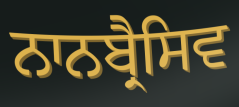
ਨਾਨਬ੍ਰੈਸਿਵ